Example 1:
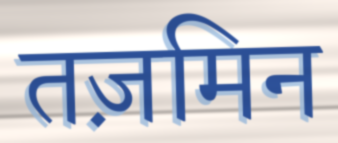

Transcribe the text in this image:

तज़मिन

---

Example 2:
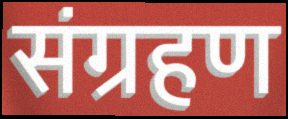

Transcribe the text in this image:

संग्रहण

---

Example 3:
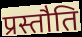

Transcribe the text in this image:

प्रस्तौति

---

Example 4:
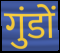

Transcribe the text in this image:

गुंडों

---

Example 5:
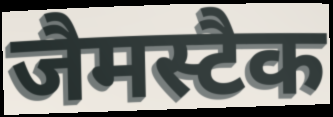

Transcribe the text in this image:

जैमस्टैक